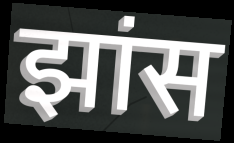
झांस